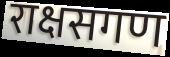
राक्षसगण